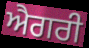
ਐਗਰੀ